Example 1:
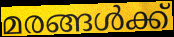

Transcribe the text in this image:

മരങ്ങൾക്ക്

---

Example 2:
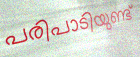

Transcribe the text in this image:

പരിപാടിയുണ്ട്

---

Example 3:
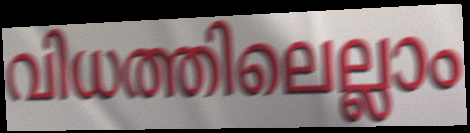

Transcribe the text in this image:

വിധത്തിലെല്ലാം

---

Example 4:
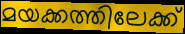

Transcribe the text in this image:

മയക്കത്തിലേക്ക്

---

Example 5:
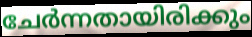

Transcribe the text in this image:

ചേർന്നതായിരിക്കും